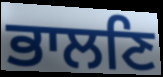
ਭਾਲਣਿ